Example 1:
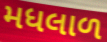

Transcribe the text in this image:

મધલાળ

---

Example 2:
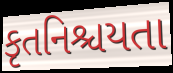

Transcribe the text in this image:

કૃતનિશ્ચયતા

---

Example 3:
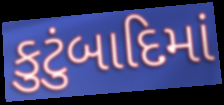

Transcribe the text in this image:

કુટુંબાદિમાં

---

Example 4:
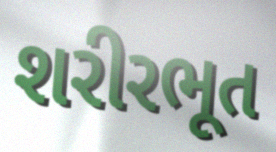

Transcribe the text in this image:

શરીરભૂત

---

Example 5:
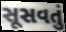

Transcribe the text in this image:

સૂસવતું